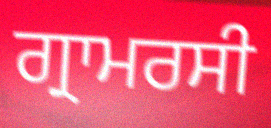
ਗ੍ਰਾਮਰਸੀ